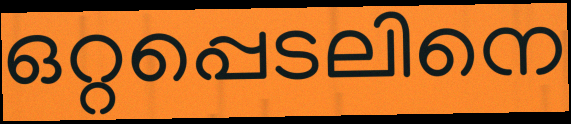
ഒറ്റപ്പെടലിനെ